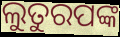
ଲୁତୁରପଙ୍କ